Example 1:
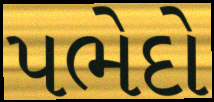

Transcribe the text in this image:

પભેદો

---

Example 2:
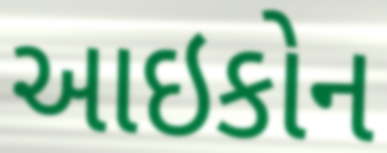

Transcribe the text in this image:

આઇકોન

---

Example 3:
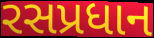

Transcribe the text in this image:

રસપ્રધાન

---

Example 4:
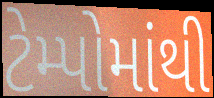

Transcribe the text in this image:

ટેમ્પોમાંથી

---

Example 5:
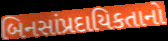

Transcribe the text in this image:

બિનસાંપ્રદાયિકતાનો